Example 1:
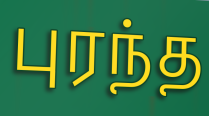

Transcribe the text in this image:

புரந்த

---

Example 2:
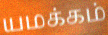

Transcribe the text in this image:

யமக்கம்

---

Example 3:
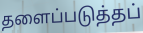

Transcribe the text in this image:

தளைப்படுத்தப்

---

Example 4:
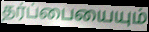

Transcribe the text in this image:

தர்ப்பையையும்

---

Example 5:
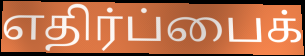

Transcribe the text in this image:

எதிர்ப்பைக்